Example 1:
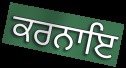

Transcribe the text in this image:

ਕਰਨਾਇ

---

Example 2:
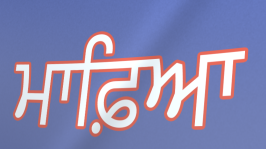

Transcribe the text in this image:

ਮਾਫ਼ਿਆ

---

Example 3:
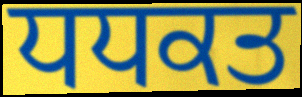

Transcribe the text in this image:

ਧਧਕਤ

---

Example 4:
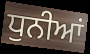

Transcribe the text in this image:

ਧੁਨੀਆਂ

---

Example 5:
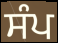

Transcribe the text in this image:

ਸੰਪ